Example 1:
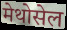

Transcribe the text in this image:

मेथोसेल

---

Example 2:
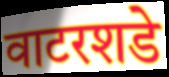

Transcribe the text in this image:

वाटरशडे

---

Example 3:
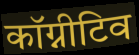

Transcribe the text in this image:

कॉग्नीटिव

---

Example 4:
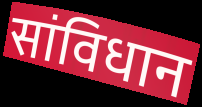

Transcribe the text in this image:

सांविधान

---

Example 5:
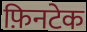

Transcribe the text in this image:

फ़िनटेक